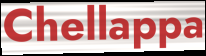
Chellappa